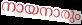
നായനാരും